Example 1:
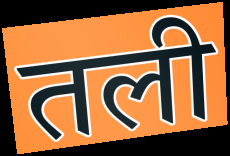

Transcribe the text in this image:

तली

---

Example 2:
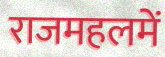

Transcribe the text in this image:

राजमहलमें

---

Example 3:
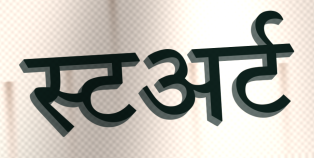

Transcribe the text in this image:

स्टअर्ट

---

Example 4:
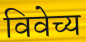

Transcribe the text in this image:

विवेच्य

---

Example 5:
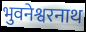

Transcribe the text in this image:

भुवनेश्वरनाथ